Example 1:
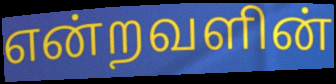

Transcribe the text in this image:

என்றவளின்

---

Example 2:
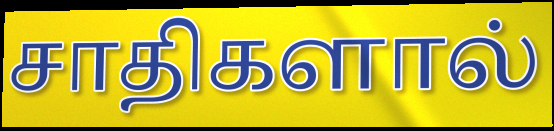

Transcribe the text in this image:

சாதிகளால்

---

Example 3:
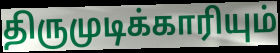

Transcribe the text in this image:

திருமுடிக்காரியும்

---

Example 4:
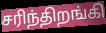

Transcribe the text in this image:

சரிந்திறங்கி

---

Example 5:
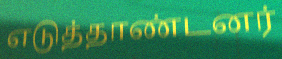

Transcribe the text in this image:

எடுத்தாண்டனர்